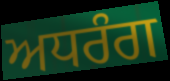
ਅਧਰੰਗ